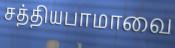
சத்தியபாமாவை